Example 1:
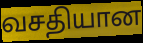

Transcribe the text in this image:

வசதியான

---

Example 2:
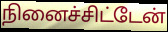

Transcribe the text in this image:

நினைச்சிட்டேன்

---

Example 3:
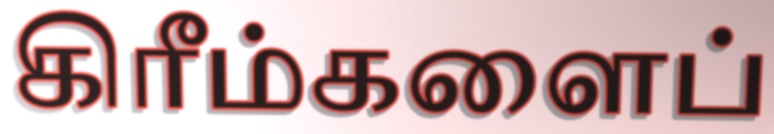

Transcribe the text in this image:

கிரீம்களைப்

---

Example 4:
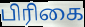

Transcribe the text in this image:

பிரிகை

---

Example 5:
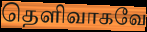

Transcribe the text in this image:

தெளிவாகவே